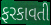
ફરકાવતી